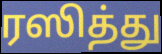
ரஸித்து